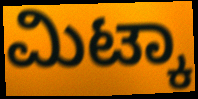
ಮಿಟ್ಕಾ